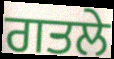
ਗਤਲੇ